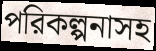
পরিকল্পনাসহ